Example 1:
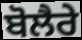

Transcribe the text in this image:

ਬੋਲੈਰੇ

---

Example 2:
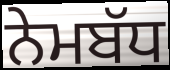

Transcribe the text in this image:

ਨੇਮਬੱਧ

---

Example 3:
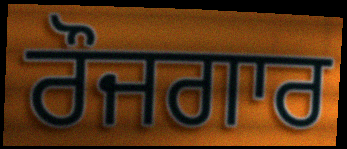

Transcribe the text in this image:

ਰੌਜਗਾਰ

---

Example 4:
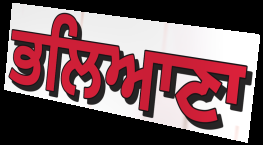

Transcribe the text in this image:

ਭਲਿਆਣਾ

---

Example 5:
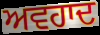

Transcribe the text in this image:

ਅਵਹਾਦ